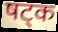
षट्क